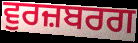
ਵੁਰਜ਼ਬਰਗ